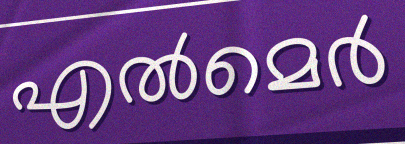
എൽമെർ